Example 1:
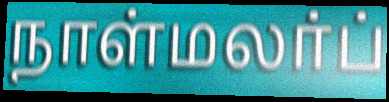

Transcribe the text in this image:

நாள்மலர்ப்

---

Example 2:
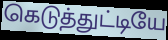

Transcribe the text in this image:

கெடுத்துட்டியே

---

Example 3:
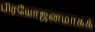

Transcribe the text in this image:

பிரயோஜனமாகக்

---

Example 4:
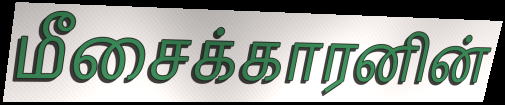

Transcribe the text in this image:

மீசைக்காரனின்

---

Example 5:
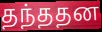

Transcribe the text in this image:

தந்ததன